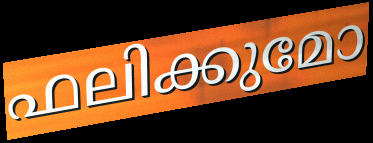
ഫലിക്കുമോ